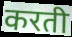
करती